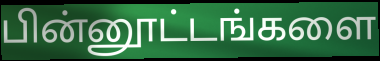
பின்னூட்டங்களை